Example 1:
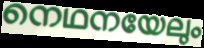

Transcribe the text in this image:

നെഥനയേലും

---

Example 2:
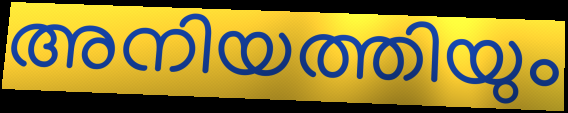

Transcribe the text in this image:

അനിയത്തിയും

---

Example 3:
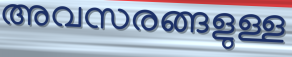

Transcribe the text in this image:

അവസരങ്ങളുള്ള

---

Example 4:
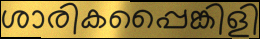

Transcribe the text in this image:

ശാരികപ്പൈങ്കിളി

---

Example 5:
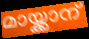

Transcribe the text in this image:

മായ്ക്കാന്